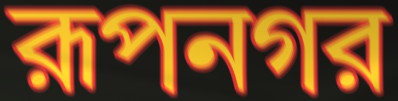
রূপনগর